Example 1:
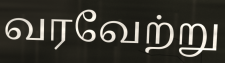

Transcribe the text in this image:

வரவேற்று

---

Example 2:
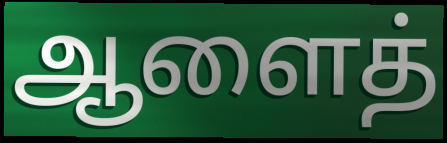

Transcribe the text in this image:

ஆளைத்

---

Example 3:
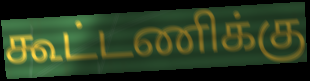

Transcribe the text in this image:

கூட்டணிக்கு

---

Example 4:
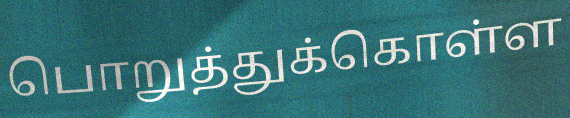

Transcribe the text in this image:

பொறுத்துக்கொள்ள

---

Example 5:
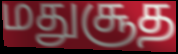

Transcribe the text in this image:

மதுசூத